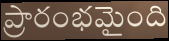
ప్రారంభమైంది